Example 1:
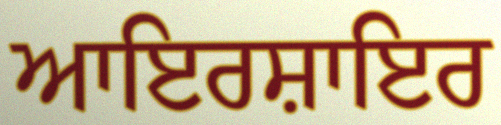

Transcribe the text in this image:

ਆਇਰਸ਼ਾਇਰ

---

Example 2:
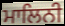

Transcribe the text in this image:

ਮਾਲਿਨੀ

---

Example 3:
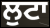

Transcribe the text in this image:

ਲੁਟਾ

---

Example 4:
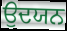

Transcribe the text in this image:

ਉਦਯਨ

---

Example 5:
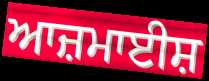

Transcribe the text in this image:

ਆਜ਼ਮਾਈਸ਼